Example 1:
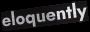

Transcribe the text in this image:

eloquently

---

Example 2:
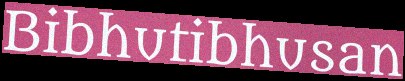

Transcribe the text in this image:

Bibhutibhusan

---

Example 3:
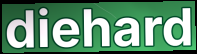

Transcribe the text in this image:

diehard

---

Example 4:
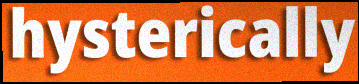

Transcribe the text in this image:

hysterically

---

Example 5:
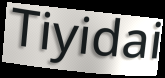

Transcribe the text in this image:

Tiyidai